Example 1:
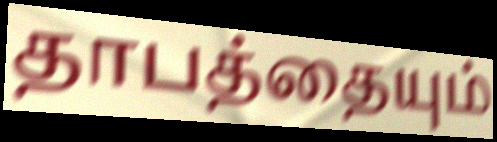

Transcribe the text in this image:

தாபத்தையும்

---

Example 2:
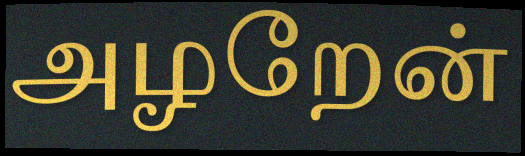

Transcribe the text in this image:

அழறேன்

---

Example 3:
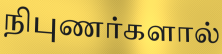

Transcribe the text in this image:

நிபுணர்களால்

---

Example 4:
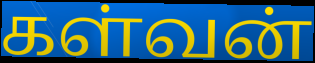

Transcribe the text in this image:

கள்வன்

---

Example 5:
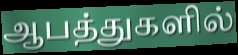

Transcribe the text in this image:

ஆபத்துகளில்